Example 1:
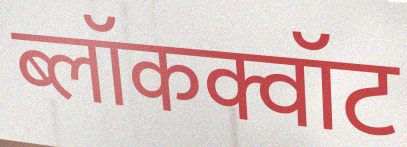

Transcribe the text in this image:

ब्लॉकक्वॉट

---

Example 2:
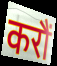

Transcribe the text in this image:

करौं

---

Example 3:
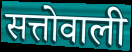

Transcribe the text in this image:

सत्तोवाली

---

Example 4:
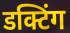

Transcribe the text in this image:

डक्टिंग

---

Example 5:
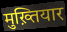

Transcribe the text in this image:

मुख़्तियार